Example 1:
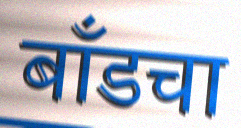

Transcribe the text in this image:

बाँडचा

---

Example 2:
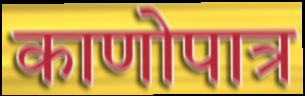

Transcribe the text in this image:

काणोपात्र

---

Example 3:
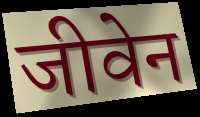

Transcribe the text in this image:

जीवेन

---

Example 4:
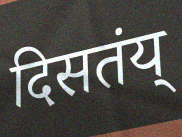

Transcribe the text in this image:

दिसतंय्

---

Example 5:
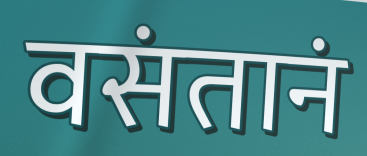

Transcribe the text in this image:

वसंतानं